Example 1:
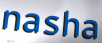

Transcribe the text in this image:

nasha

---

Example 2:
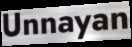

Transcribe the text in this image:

Unnayan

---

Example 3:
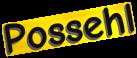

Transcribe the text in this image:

Possehl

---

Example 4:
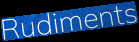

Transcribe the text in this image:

Rudiments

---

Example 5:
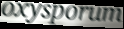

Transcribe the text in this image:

oxysporum